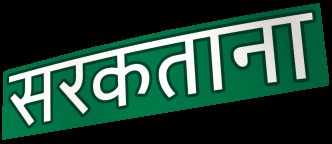
सरकताना